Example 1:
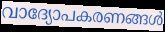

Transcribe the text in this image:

വാദ്യോപകരണങ്ങൾ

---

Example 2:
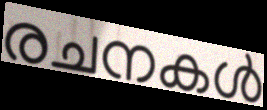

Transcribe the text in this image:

രചനകൾ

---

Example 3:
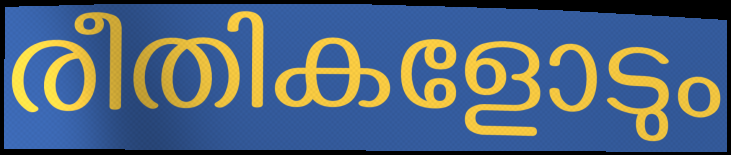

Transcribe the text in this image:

രീതികളോടും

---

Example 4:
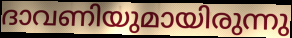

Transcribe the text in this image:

ദാവണിയുമായിരുന്നു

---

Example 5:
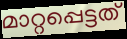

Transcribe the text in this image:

മാറ്റപ്പെട്ടത്